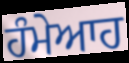
ਹੰਮੇਆਹ